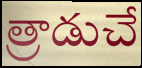
త్రాడుచే